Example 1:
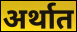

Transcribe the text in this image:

अर्थात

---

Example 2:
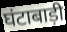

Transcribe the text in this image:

घंटाबाड़ी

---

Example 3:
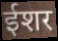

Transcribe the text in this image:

ईशर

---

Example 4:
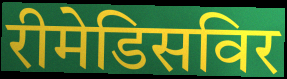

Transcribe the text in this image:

रीमेडिसविर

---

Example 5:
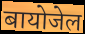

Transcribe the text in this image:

बायोजेल